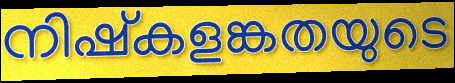
നിഷ്കളങ്കതയുടെ